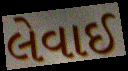
લેવાઈ